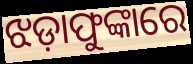
ଝଡ଼ାଫୁଙ୍କାରେ